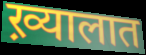
ख़्यालात